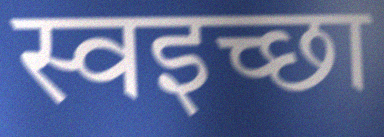
स्वइच्छा